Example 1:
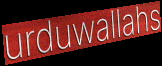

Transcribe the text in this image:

urduwallahs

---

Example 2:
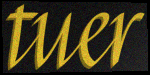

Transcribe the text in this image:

tuer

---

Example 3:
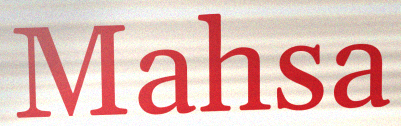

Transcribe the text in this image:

Mahsa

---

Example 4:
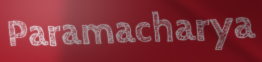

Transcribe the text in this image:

Paramacharya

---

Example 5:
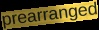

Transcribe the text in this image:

prearranged